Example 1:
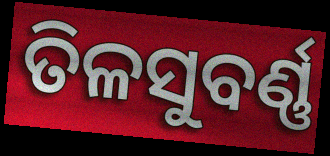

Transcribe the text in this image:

ତିଳସୁବର୍ଣ୍ଣ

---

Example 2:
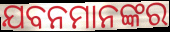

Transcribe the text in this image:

ଯବନମାନଙ୍କର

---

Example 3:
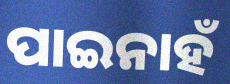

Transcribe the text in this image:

ପାଇନାହଁ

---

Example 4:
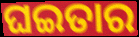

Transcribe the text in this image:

ଘଇତାର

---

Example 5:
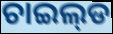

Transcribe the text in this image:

ଚାଇଲ୍‌ଡ